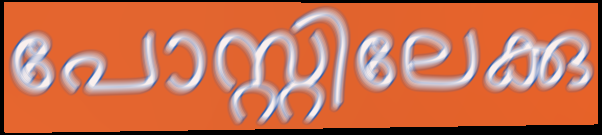
പോസ്റ്റിലേക്കു